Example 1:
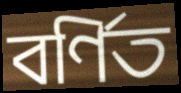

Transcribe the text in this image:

বর্ণিত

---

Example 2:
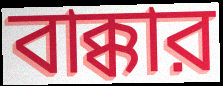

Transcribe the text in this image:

বাক্কার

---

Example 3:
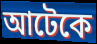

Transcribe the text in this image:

আটেকে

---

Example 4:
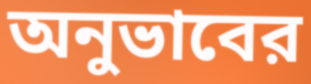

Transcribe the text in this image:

অনুভাবের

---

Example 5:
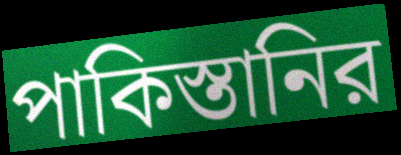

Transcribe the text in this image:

পাকিস্তানির